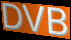
DVB